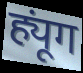
ह्यूंग